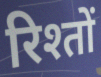
रिश्तों